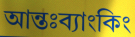
আন্তঃব্যাংকিং